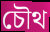
চৌথ